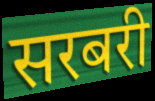
सरबरी